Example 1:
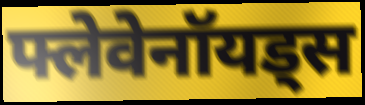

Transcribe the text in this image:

फ्लेवेनॉयड्स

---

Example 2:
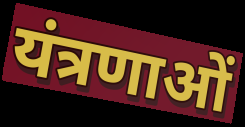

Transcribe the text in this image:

यंत्रणाओं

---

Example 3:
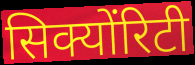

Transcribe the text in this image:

सिक्योंरिटी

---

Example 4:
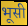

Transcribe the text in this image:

भूसी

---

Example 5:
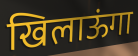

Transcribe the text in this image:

खिलाऊंगा